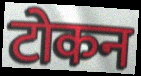
टोकन